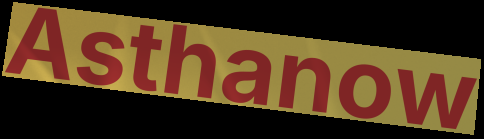
Asthanow